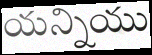
యన్నియు